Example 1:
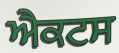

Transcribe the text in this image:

ਐਕਟਸ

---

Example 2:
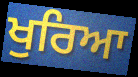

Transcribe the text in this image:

ਖੁਰਿਆ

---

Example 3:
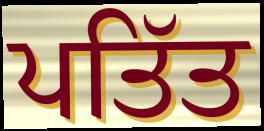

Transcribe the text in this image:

ਪਤਿੱਤ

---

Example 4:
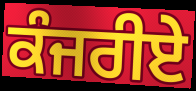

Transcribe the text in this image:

ਕੰਜਰੀਏ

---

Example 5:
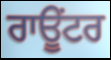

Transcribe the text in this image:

ਰਾਊਂਟਰ